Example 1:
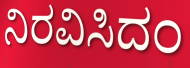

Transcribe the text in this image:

ನಿರವಿಸಿದಂ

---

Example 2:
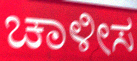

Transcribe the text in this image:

ಚಾಳೀಸ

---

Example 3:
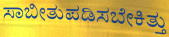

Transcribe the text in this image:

ಸಾಬೀತುಪಡಿಸಬೇಕಿತ್ತು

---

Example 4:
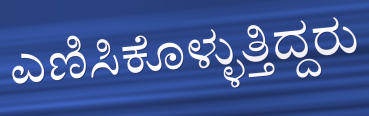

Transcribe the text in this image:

ಎಣಿಸಿಕೊಳ್ಳುತ್ತಿದ್ದರು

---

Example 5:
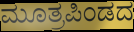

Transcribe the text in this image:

ಮೂತ್ರಪಿಂಡದ